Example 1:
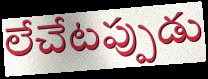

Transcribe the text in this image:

లేచేటప్పుడు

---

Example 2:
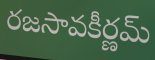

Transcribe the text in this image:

రజసావకీర్ణమ్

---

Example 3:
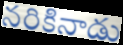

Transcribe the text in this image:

నరికినాడు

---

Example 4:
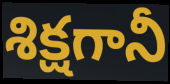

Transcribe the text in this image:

శిక్షగానీ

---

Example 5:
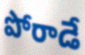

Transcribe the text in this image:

పోరాడే